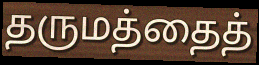
தருமத்தைத்